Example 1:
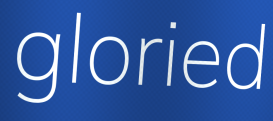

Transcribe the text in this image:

gloried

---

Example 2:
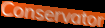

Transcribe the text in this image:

Conservator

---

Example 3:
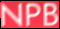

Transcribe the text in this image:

NPB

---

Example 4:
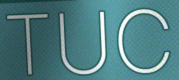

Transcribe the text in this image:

TUC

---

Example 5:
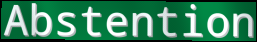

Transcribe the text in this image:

Abstention